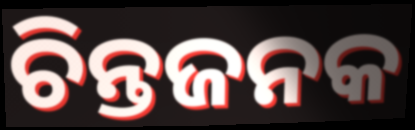
ଚିନ୍ତଜନକ